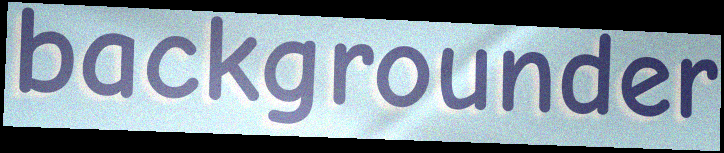
backgrounder